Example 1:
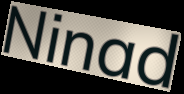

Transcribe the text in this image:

Ninad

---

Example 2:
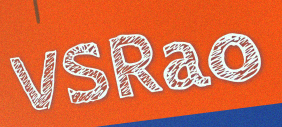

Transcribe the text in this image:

VSRao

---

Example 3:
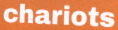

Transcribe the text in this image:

chariots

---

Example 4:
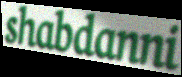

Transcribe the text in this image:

shabdanni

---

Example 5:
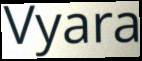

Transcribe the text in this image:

Vyara